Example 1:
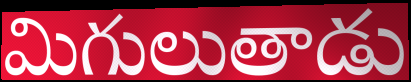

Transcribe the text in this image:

మిగులుతాడు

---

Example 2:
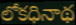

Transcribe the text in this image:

లోకధినాథ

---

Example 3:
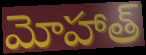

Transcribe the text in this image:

మోహాత్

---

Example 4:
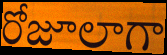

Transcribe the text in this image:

రోజూలాగా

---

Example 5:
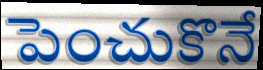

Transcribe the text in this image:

పెంచుకొనే